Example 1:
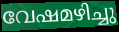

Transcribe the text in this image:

വേഷമഴിച്ചു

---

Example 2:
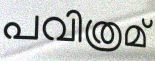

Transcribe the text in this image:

പവിത്രമ്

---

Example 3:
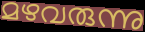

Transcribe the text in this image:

മഴവരുന്നു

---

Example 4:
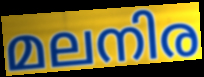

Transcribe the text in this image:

മലനിര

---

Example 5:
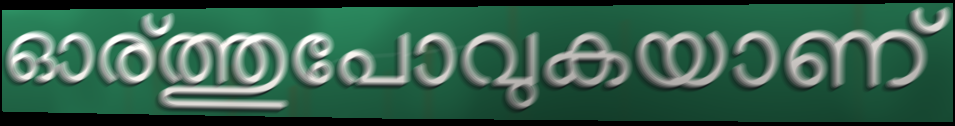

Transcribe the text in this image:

ഓര്ത്തുപോവുകയാണ്